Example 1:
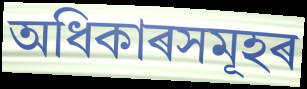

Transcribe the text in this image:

অধিকাৰসমূহৰ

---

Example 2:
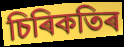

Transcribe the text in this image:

চিৰিকতিৰ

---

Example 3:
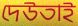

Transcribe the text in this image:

দেউতাই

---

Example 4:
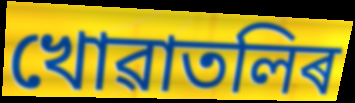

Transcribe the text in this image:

খোৱাতলিৰ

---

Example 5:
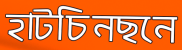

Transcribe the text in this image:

হাটচিনছনে